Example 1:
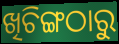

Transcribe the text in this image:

ଖିଚିଙ୍ଗଠାରୁ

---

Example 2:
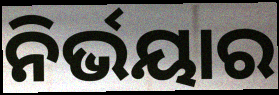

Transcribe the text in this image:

ନିର୍ଭୟାର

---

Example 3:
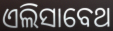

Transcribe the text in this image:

ଏଲିସାବେଥ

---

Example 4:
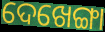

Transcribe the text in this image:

ଦେଖେଙ୍ଗା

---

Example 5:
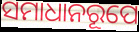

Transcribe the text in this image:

ସମାଧାନରୂପେ